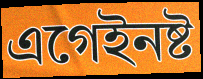
এগেইনষ্ট